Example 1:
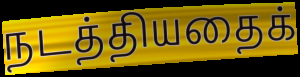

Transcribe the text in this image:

நடத்தியதைக்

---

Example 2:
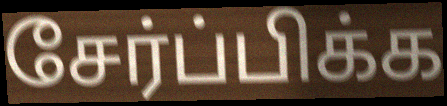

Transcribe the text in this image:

சேர்ப்பிக்க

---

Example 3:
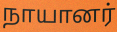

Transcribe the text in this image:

நாயானர்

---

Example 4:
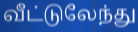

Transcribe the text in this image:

வீட்டுலேந்து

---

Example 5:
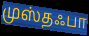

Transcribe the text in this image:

முஸ்தஃபா